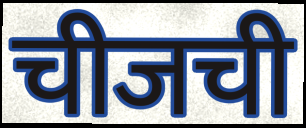
चीजची